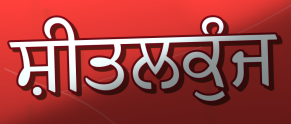
ਸ਼ੀਤਲਕੁੰਜ